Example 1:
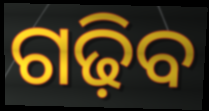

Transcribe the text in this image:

ଗଢ଼ିବ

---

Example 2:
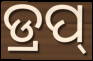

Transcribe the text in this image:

ଡ୍ରପ୍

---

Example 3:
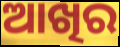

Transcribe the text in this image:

ଆଖିର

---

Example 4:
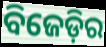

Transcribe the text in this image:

ବିଜେଡ଼ିର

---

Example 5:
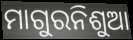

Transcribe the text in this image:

ମାଗୁରନିଶୁଆ